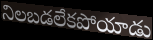
నిలబడలేకపోయాడు